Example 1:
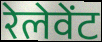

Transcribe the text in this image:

रेलेवेंट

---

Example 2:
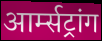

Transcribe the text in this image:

आर्म्सट्रांग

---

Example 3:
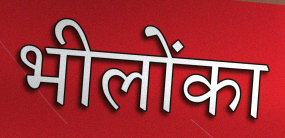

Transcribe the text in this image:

भीलोंका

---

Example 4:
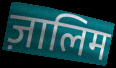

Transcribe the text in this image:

ज़ालिम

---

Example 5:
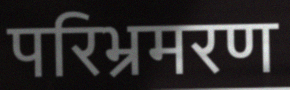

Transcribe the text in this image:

परिभ्रमरण